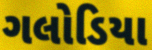
ગલોડિયા